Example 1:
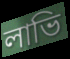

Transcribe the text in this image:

লাভি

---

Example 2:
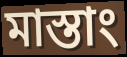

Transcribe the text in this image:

মাস্তাং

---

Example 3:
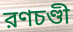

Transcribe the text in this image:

রণচণ্ডী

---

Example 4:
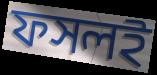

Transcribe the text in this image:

ফসলই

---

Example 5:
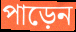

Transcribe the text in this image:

পাড়েন